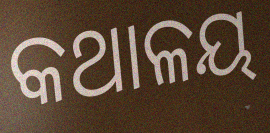
କଥାଳୟ